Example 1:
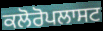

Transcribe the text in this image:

ਕਲੋਰੋਪਲਾਸਟ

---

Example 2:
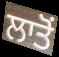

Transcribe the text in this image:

ਲਾਤੋਂ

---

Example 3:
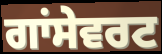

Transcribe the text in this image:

ਗਾਂਸੇਵਰਟ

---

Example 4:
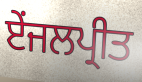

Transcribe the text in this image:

ਏਂਜਲਪ੍ਰੀਤ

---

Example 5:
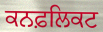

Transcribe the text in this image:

ਕਨਫ਼ਲਿਕਟ